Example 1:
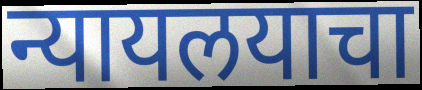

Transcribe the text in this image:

न्यायलयाचा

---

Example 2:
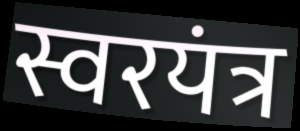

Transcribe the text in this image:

स्वरयंत्र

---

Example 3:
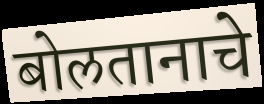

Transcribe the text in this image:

बोलतानाचे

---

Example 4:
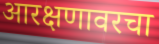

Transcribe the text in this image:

आरक्षणावरचा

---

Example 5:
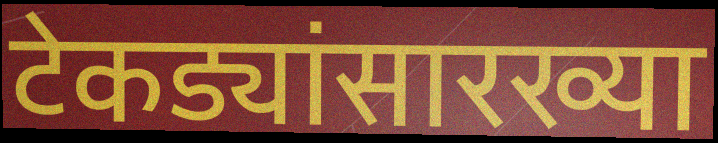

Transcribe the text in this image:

टेकड्यांसारख्या